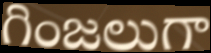
గింజలుగా